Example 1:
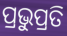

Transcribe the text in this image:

ପ୍ରଭୁପ୍ରତି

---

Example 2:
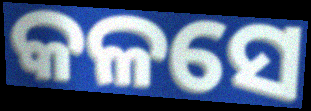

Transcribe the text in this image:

କଳସେ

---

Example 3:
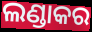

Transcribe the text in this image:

ଲଣ୍ଡାକର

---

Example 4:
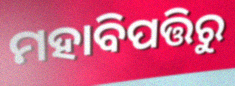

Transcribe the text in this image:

ମହାବିପତ୍ତିରୁ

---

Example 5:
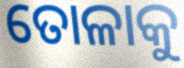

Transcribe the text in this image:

ତୋଳାକୁ